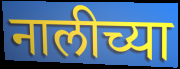
नालीच्या